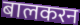
बालकरन